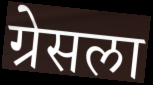
ग्रेसला